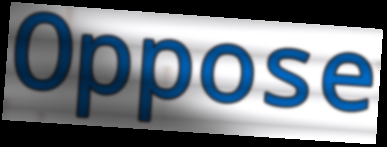
Oppose